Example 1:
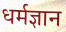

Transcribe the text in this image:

धर्मज्ञान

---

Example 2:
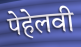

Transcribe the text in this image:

पेहेलवी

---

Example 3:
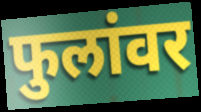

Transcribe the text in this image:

फुलांवर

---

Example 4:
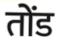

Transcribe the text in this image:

तोंड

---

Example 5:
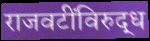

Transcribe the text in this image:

राजवटींविरुद्ध